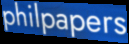
philpapers